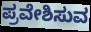
ಪ್ರವೇಶಿಸುವ